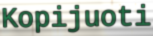
Kopijuoti